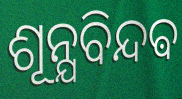
ଶୂନ୍ଯବିନ୍ଦଵ